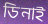
ডিনাই